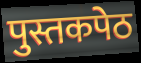
पुस्तकपेठ